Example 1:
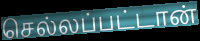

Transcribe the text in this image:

செல்லப்பட்டான்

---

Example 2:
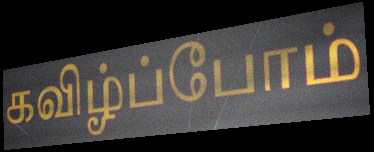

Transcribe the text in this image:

கவிழ்ப்போம்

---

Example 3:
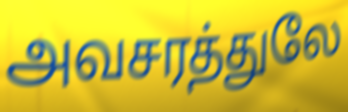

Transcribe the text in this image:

அவசரத்துலே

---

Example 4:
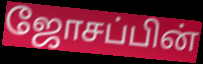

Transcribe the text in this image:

ஜோசப்பின்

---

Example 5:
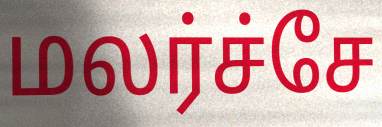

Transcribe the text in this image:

மலர்ச்சே